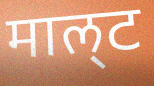
माल्ट